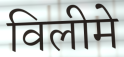
विलीमे